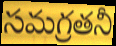
సమగ్రతనీ